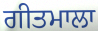
ਗੀਤਮਾਲਾ